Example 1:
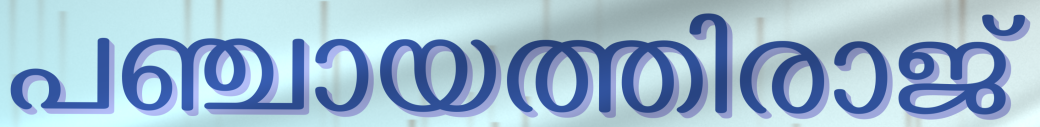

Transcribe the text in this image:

പഞ്ചായത്തിരാജ്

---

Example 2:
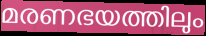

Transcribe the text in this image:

മരണഭയത്തിലും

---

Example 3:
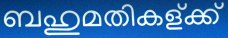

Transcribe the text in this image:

ബഹുമതികള്ക്ക്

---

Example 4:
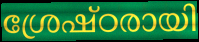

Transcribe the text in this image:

ശ്രേഷ്ഠരായി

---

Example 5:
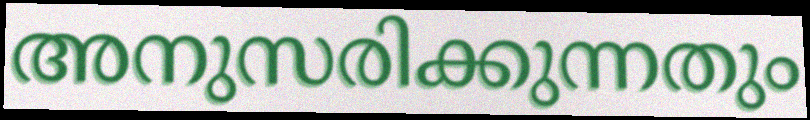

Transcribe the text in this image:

അനുസരിക്കുന്നതും